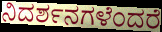
ನಿದರ್ಶನಗಳೆಂದರೆ